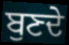
ਬੁਣਦੇ